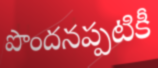
పొందనప్పటికీ